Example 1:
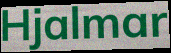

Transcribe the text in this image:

Hjalmar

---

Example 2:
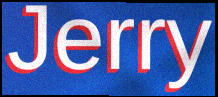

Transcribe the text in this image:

Jerry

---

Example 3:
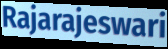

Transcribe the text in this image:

Rajarajeswari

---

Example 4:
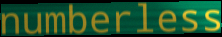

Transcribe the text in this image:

numberless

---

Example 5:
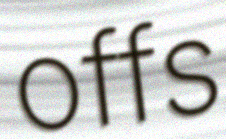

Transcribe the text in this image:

offs